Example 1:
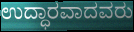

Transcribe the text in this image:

ಉದ್ಧಾರವಾದವರು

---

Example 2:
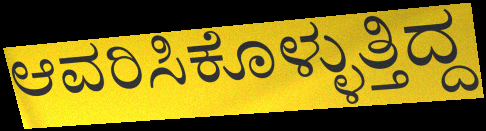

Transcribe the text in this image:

ಆವರಿಸಿಕೊಳ್ಳುತ್ತಿದ್ದ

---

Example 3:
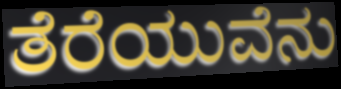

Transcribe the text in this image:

ತೆರೆಯುವೆನು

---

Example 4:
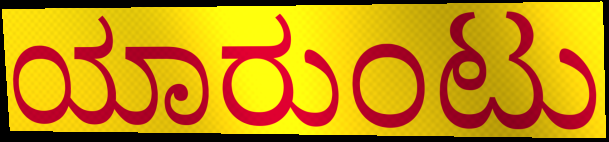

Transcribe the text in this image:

ಯಾರುಂಟು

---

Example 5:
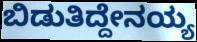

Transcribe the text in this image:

ಬಿಡುತಿದ್ದೇನಯ್ಯ